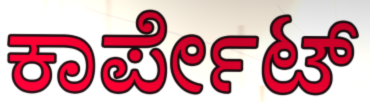
ಕಾರ್ಪೇಟ್